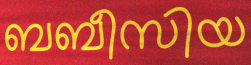
ബബീസിയ